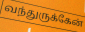
வந்துருக்கேன்